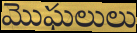
మొఘలులు